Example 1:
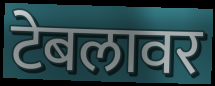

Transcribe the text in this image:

टेबलावर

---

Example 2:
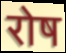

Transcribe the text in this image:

रोष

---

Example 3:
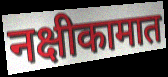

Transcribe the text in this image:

नक्षीकामात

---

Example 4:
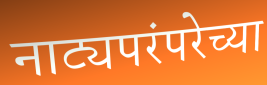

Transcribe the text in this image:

नाट्यपरंपरेच्या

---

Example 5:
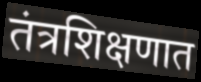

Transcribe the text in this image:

तंत्रशिक्षणात